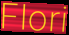
Flori